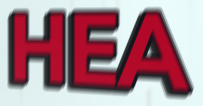
HEA